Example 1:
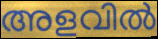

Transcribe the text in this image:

അളവിൽ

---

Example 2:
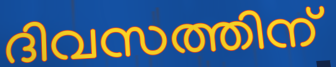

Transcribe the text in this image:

ദിവസത്തിന്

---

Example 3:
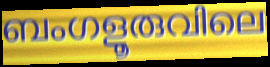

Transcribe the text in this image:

ബംഗളൂരുവിലെ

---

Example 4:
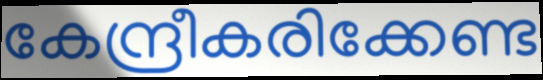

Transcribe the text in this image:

കേന്ദ്രീകരിക്കേണ്ട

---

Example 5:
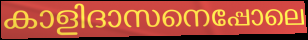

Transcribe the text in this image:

കാളിദാസനെപ്പോലെ